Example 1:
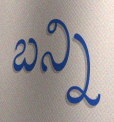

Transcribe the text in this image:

బన్ని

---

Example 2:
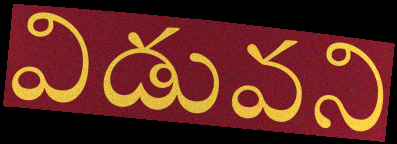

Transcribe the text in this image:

విడువని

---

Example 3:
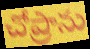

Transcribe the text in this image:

చోప్రాను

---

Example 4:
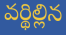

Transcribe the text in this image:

వర్థిల్లిన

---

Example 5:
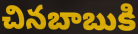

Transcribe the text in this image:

చినబాబుకి